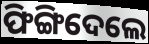
ଫିଙ୍ଗିଦେଲେ